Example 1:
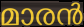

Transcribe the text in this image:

മാരൻ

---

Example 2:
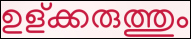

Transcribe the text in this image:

ഉള്ക്കരുത്തും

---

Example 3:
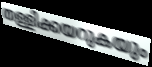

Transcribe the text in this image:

തള്ളിക്കയറുകയും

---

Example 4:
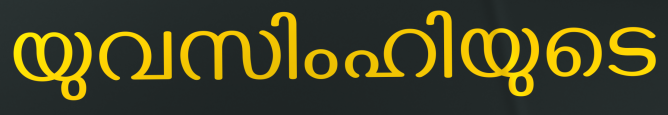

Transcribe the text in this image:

യുവസിംഹിയുടെ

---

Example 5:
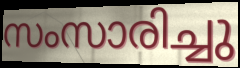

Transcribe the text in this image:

സംസാരിച്ചു